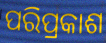
ପରିପ୍ରକାଶ